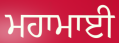
ਮਹਾਮਾਈ